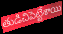
తుడిచిపెట్టేశాయి